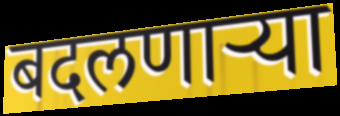
बदलणाऱ्या